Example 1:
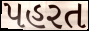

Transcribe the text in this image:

પહરત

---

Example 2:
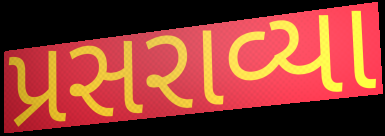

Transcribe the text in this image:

પ્રસરાવ્યા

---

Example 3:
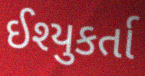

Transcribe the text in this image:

ઈશ્યુકર્તા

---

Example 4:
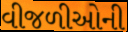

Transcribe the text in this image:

વીજળીઓની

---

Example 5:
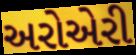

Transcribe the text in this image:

અરોએરી